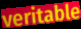
veritable